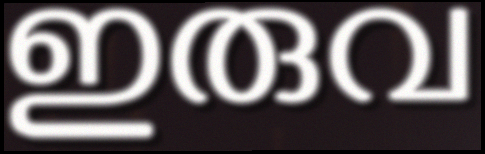
ഇരുവ